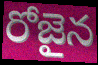
రోజైన